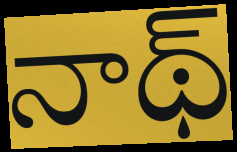
నాథ్